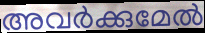
അവർക്കുമേൽ